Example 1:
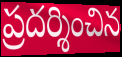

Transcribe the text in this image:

ప్రదర్శించిన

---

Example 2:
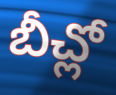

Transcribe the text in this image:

బీచ్లో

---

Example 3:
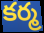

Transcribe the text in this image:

కర్మ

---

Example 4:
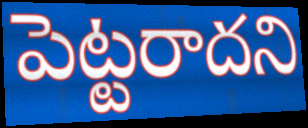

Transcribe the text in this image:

పెట్టరాదని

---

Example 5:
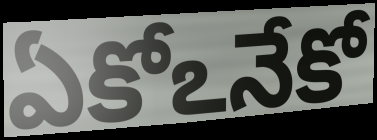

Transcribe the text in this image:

ఏకోఽనేకో